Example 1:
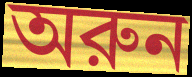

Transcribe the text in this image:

অরুন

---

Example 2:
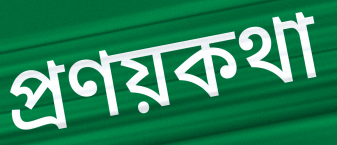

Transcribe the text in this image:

প্রণয়কথা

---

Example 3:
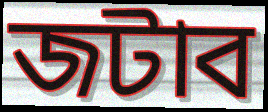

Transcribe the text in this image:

জটাব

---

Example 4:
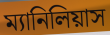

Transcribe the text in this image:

ম্যানিলিয়াস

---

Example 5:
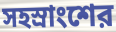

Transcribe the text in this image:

সহস্রাংশের